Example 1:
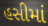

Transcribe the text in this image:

હસીમાં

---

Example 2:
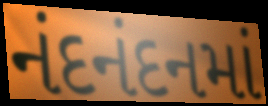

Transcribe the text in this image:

નંદનંદનમાં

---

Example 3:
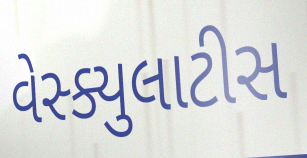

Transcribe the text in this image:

વેસ્ક્યુલાટીસ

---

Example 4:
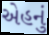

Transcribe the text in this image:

એહનું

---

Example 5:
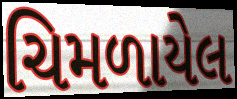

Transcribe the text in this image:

ચિમળાયેલ